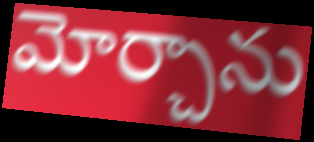
మోర్చాను